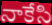
నాకేసి